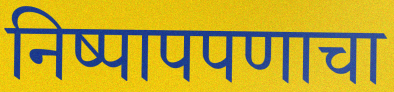
निष्पापपणाचा